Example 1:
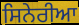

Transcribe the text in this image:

ਸਿਨੇਰੀਆ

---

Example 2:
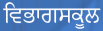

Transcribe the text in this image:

ਵਿਭਾਗਸਕੂਲ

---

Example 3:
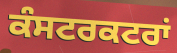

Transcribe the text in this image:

ਕੰਸਟਰਕਟਰਾਂ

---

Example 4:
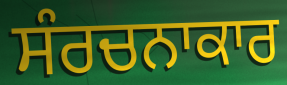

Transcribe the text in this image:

ਸੰਰਚਨਾਕਾਰ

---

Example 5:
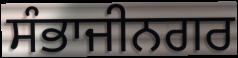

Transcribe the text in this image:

ਸੰਭਾਜੀਨਗਰ